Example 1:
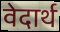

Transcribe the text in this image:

वेदार्थ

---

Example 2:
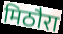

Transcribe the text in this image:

मिठौरा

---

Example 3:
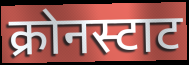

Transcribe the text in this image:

क्रोनस्टाट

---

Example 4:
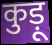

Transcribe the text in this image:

कुड़ू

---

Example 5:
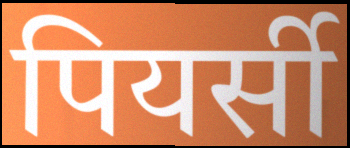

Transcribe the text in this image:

पियर्सी